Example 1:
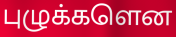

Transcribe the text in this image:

புழுக்களென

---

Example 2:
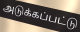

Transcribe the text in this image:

அடுக்கப்பட்டு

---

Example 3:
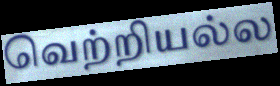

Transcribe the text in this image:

வெற்றியல்ல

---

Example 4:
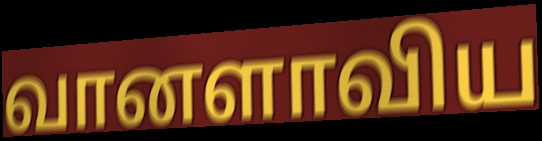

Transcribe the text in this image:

வானளாவிய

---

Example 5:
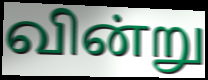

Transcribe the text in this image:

வின்று